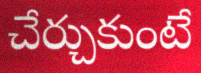
చేర్చుకుంటే